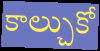
కాల్చుకో